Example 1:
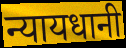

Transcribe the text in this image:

न्यायधानी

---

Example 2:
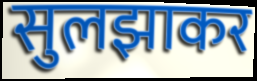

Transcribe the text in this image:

सुलझाकर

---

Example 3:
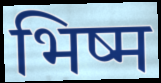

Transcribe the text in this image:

भिष्म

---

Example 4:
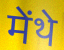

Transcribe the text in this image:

मेंथे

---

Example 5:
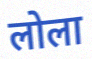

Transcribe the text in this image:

लोला